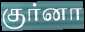
குர்னா